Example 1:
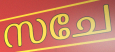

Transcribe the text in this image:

സചേ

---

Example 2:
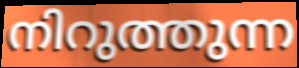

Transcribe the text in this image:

നിറുത്തുന്ന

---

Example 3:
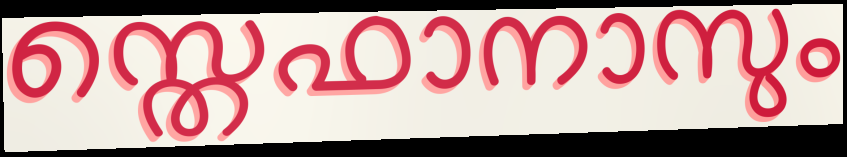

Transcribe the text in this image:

സ്തെഫാനാസും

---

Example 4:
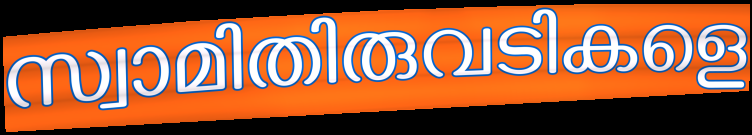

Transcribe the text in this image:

സ്വാമിതിരുവടികളെ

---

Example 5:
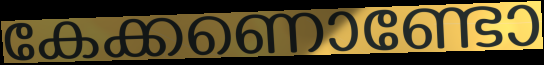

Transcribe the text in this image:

കേക്കണൊണ്ടോ